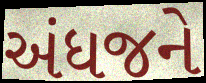
અંધજને